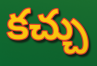
కచ్చు